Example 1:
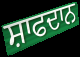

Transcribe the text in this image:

ਸ਼ਾਫਦਾਨ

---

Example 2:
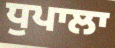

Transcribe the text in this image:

ਧੁਪਾਲਾ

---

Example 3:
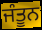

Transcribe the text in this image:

ਜੰਤੂਨ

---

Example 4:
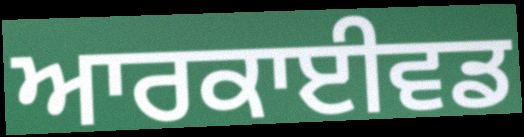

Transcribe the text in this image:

ਆਰਕਾਈਵਡ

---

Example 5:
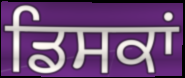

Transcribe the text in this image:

ਡਿਸਕਾਂ